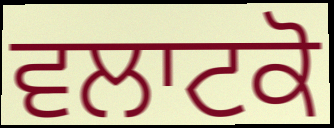
ਵਲਾਟਕੋ